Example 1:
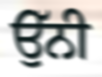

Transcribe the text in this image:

ਉੱਨੀ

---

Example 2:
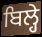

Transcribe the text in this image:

ਬਿਲ੍ਹੇ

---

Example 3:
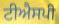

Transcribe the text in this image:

ਟੀਐਸਪੀ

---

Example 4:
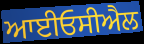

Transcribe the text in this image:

ਆਈਓਸੀਐਲ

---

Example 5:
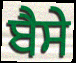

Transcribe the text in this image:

ਬੈਸੇ